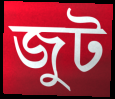
জুট